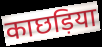
काछड़िया